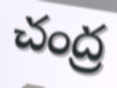
చంద్ర